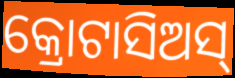
କ୍ରୋଟାସିଅସ୍